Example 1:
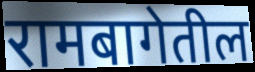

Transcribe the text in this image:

रामबागेतील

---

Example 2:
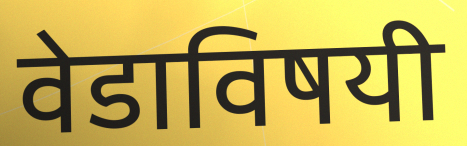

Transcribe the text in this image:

वेडाविषयी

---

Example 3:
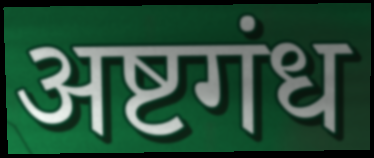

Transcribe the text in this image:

अष्टगंध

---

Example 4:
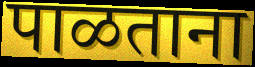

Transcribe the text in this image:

पाळताना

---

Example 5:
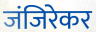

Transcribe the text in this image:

जंजिरेकर